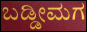
ಬಡ್ಡೀಮಗ